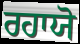
ਰਹਾਯੋ